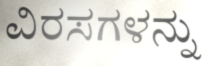
ವಿರಸಗಳನ್ನು